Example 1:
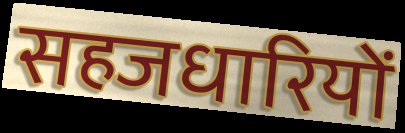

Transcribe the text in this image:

सहजधारियों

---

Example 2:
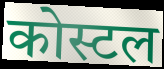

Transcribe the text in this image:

कोस्टल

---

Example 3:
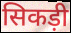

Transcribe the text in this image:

सिकड़ी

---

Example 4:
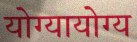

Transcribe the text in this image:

योग्यायोग्य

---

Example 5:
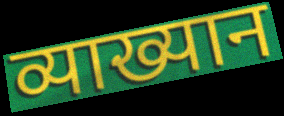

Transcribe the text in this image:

व्याख्यान